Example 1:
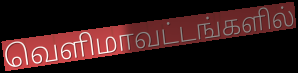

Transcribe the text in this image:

வெளிமாவட்டங்களில்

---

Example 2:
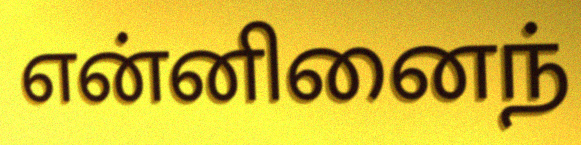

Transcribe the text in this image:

என்னினைந்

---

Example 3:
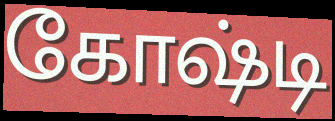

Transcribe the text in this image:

கோஷ்டி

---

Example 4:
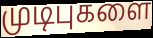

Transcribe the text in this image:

முடிபுகளை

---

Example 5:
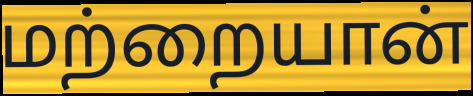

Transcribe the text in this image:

மற்றையான்